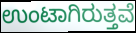
ಉಂಟಾಗಿರುತ್ತವೆ